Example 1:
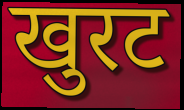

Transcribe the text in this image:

खुरट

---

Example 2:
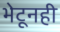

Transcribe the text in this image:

भेटूनही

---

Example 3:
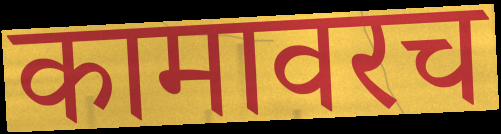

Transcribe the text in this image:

कामावरच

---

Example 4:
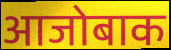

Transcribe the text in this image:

आजोबाक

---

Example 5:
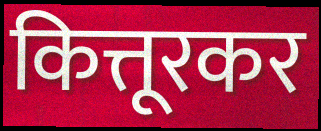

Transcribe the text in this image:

कित्तूरकर